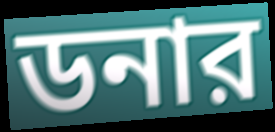
ডনার